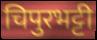
चिपुरभट्टी